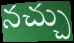
నచ్చు